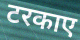
टरकाए